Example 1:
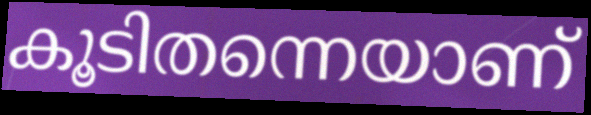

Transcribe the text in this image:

കൂടിതന്നെയാണ്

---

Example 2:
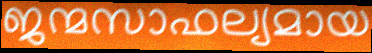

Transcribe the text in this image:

ജന്മസാഫല്യമായ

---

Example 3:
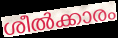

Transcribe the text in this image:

ശീൽക്കാരം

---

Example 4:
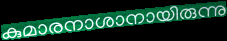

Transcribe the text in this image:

കുമാരനാശാനായിരുന്നു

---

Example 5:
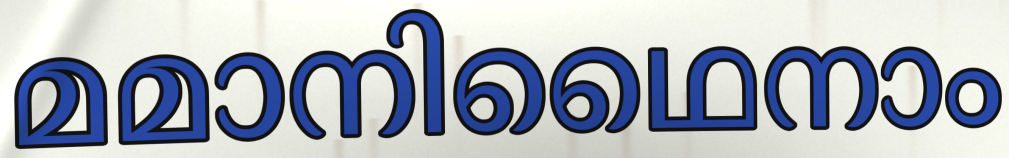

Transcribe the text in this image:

മമാനിഥൈനാം